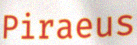
Piraeus